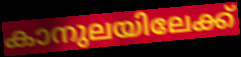
കാനുലയിലേക്ക്